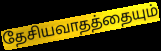
தேசியவாதத்தையும்